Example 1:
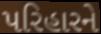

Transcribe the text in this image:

પરિહારને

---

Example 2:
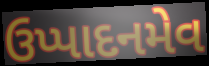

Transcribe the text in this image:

ઉપ્પાદનમેવ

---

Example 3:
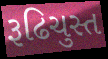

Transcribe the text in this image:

રૂઢિચુસ્ત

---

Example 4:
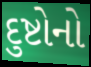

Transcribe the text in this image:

દુષ્ટોનો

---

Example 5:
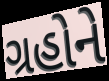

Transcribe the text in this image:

ગ્રહોને